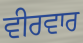
ਵੀਰਵਾਰ